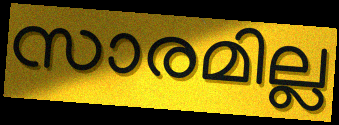
സാരമില്ല